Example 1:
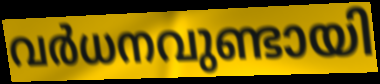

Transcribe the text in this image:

വർധനവുണ്ടായി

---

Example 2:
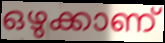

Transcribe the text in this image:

ഒഴുക്കാണ്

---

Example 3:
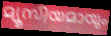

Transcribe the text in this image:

മ്യൂസിയമായും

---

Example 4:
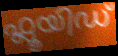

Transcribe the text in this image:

ഫ്ലൂയിഡ്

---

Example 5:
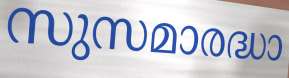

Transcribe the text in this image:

സുസമാരദ്ധാ